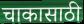
चाकासाठी